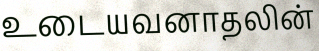
உடையவனாதலின்